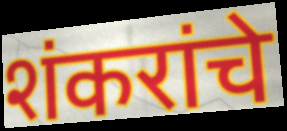
शंकरांचे